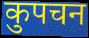
कुपचन